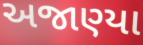
અજાણ્યા